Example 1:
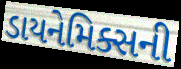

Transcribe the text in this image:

ડાયનેમિક્સની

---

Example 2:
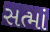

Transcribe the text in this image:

સત્માં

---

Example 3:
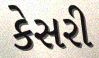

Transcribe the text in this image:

કેસરી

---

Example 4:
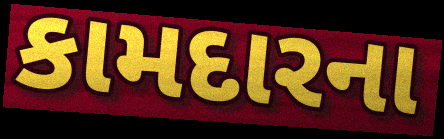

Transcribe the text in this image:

કામદારના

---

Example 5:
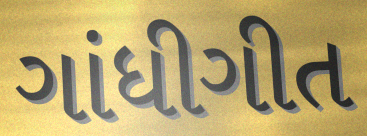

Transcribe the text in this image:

ગાંધીગીત